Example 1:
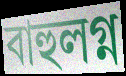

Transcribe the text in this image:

বাহুলগ্ন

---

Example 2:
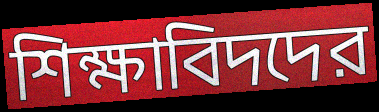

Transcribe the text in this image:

শিক্ষাবিদদের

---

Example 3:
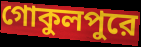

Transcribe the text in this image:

গোকুলপুরে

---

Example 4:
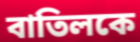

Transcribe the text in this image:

বাতিলকে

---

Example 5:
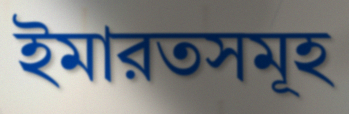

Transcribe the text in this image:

ইমারতসমূহ